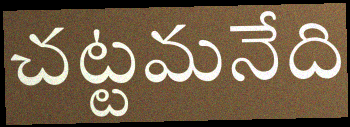
చట్టమనేది